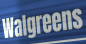
Walgreens